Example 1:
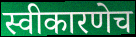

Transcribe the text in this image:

स्वीकारणेच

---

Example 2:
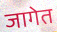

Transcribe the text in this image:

जागेत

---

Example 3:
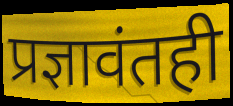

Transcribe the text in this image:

प्रज्ञावंतही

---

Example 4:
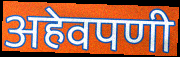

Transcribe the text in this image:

अहेवपणी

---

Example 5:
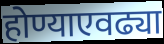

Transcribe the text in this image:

होण्याएवढ्या